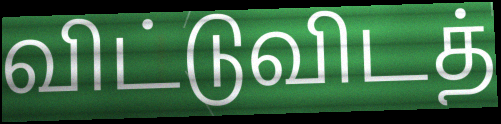
விட்டுவிடத்